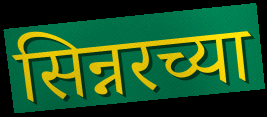
सिन्नरच्या